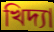
খিদ্যা